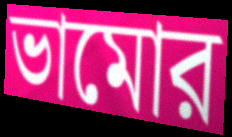
ভামোর